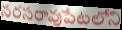
నరసరావుపేటలోని